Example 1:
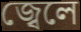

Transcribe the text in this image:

জ্বেলে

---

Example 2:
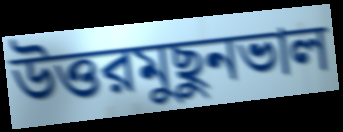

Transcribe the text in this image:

উত্তরমুছুনভাল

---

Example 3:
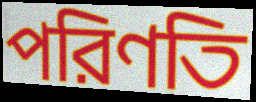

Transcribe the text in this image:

পরিণতি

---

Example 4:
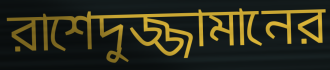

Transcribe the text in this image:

রাশেদুজ্জামানের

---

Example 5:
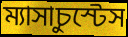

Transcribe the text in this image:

ম্যাসাচুস্টেস